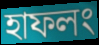
হাফলং